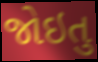
જોઇતુ